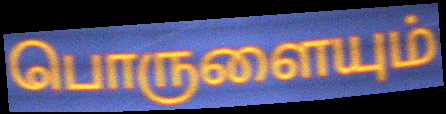
பொருளையும்